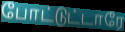
போட்டுட்டாரே